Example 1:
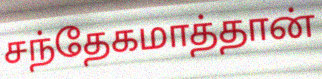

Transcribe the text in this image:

சந்தேகமாத்தான்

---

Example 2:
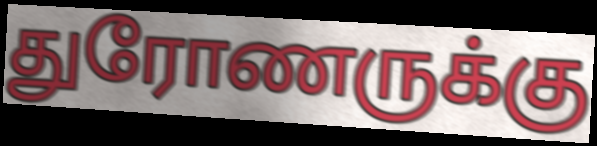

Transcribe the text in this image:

துரோணருக்கு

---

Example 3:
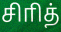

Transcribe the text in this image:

சிரித்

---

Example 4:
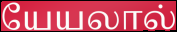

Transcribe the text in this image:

யேயலால்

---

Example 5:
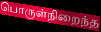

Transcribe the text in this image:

பொருள்நிறைந்த